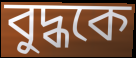
বুদ্ধকে